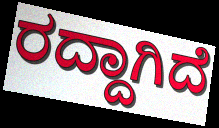
ರದ್ದಾಗಿದೆ